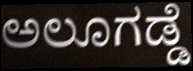
ಅಲೂಗಡ್ಡೆ